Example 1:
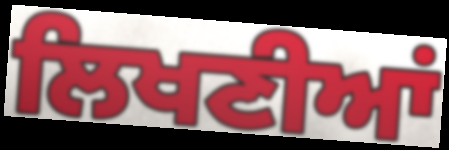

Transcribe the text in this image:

ਲਿਖਣੀਆਂ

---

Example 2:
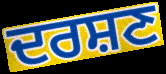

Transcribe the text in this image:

ਦਰਸ਼ਣ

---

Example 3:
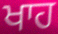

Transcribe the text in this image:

ਖਾਹ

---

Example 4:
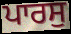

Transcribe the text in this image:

ਪਾਰਸੁ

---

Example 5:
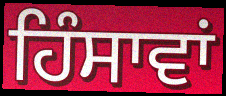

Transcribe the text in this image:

ਹਿੰਸਾਵਾਂ